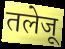
तलेजू